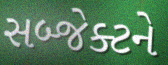
સબ્જેક્ટને